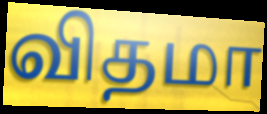
விதமா